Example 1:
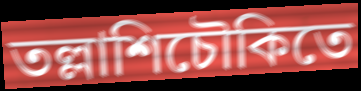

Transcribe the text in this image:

তল্লাশিচৌকিতে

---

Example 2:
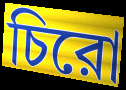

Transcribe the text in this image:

চিরো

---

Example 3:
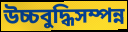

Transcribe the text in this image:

উচ্চবুদ্ধিসম্পন্ন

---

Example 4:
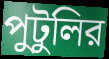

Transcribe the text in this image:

পুটুলির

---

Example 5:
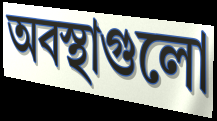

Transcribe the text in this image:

অবস্থাগুলো